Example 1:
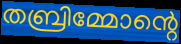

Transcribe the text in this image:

തബ്രിമ്മോന്റെ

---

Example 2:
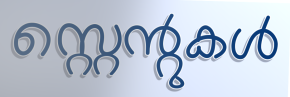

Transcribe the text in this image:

സ്റ്റെന്റുകൾ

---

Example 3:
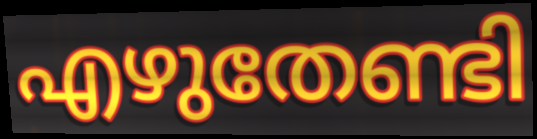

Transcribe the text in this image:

എഴുതേണ്ടി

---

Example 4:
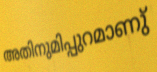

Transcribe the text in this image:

അതിനുമിപ്പുറമാണു്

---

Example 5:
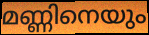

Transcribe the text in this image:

മണ്ണിനെയും